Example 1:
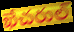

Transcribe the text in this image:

ఖేచరుల్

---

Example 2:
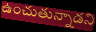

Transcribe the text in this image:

ఉంచుతున్నాడని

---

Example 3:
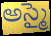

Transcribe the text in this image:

అస్మై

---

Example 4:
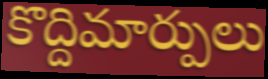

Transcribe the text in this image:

కొద్దిమార్పులు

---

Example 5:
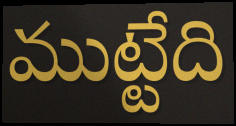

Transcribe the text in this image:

ముట్టేది